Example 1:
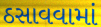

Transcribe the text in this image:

ઠસાવવામાં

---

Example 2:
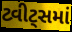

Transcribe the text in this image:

ટ્વીટ્સમાં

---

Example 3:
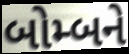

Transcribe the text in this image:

બોમ્બને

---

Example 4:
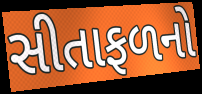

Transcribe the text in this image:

સીતાફળનો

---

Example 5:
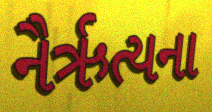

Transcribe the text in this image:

નૈર્ઋત્યના